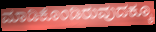
ಮಾಡಿಕೊಂಡಿರುವುದಕ್ಕೂ